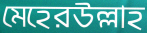
মেহেরউল্লাহ